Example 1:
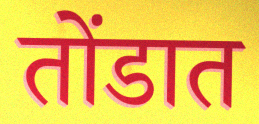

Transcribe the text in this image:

तोंडात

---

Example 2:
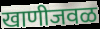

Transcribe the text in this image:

खाणीजवळ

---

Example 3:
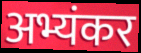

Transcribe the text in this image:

अभ्यंकर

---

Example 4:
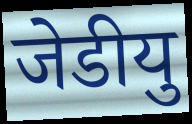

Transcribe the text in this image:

जेडीयु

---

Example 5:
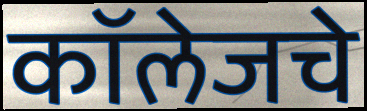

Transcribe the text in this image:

कॉलेजचे